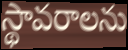
స్థావరాలను